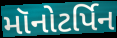
મૉનોટર્પિન